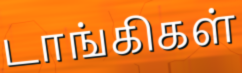
டாங்கிகள்